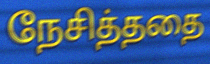
நேசித்ததை